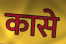
कासे